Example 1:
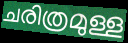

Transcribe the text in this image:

ചരിത്രമുള്ള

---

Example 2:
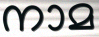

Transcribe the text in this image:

നാമ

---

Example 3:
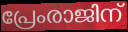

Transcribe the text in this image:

പ്രേംരാജിന്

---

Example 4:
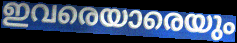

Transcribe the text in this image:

ഇവരെയാരെയും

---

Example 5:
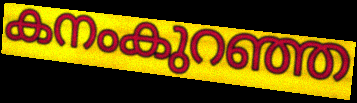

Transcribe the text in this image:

കനംകുറഞ്ഞ